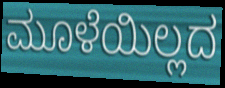
ಮೂಳೆಯಿಲ್ಲದ